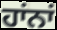
ਹਾਂਨਾਂ